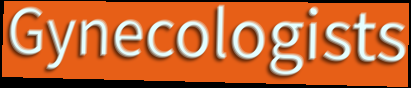
Gynecologists